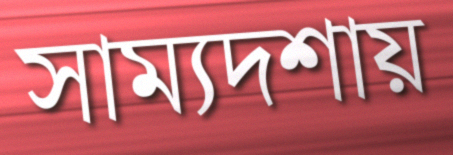
সাম্যদশায়